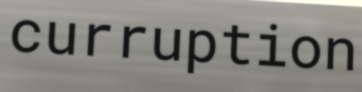
curruption